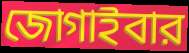
জোগাইবার